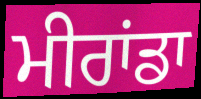
ਮੀਰਾਂਡਾ